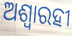
ଅଶ୍ୱାରହୀ